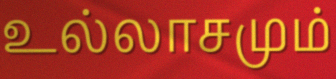
உல்லாசமும்